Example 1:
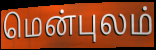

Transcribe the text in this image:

மென்புலம்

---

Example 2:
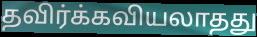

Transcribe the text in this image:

தவிர்க்கவியலாதது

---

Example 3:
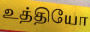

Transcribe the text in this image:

உத்தியோ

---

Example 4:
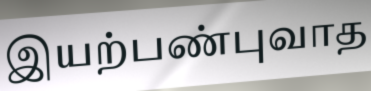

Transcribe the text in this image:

இயற்பண்புவாத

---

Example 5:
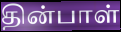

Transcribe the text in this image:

தின்பாள்